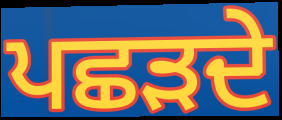
ਪਛੜਦੇ